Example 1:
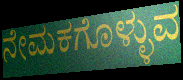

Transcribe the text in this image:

ನೇಮಕಗೊಳ್ಳುವ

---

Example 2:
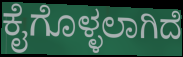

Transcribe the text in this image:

ಕೈಗೊಳ್ಳಲಾಗಿದೆ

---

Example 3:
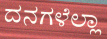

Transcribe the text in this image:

ದನಗಳೆಲ್ಲಾ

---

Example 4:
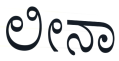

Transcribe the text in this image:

ಲೀನಾ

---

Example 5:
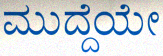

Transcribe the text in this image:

ಮುದ್ದೆಯೇ